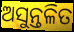
ଅସୁନ୍ତଳିତ